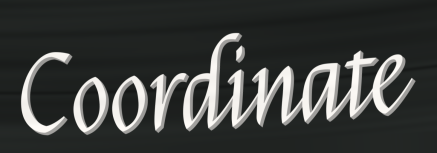
Coordinate